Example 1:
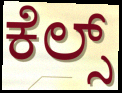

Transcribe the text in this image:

ಕೆಲ್ಸ್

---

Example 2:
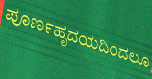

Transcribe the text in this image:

ಪೂರ್ಣಹೃದಯದಿಂದಲೂ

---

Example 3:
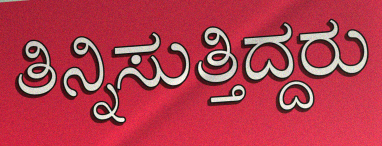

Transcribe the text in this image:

ತಿನ್ನಿಸುತ್ತಿದ್ದರು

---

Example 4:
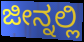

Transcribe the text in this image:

ಜೀನ್ನಲ್ಲಿ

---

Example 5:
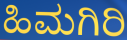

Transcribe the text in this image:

ಹಿಮಗಿರಿ